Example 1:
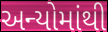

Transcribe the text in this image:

અન્યોમાંથી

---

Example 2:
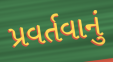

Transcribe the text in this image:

પ્રવર્તવાનું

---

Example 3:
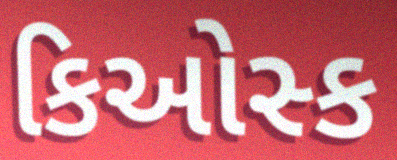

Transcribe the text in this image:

કિઓસ્ક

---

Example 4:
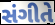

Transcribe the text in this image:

સંગીતે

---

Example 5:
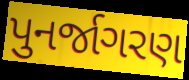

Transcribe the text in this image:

પુનર્જાગરણ